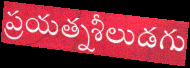
ప్రయత్నశీలుడగు